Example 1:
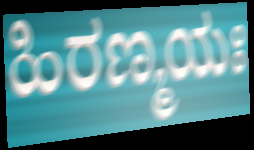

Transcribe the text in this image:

ಹಿರಣ್ಮಯಃ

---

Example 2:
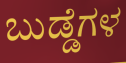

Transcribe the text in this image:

ಬುಡ್ಡೆಗಳ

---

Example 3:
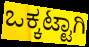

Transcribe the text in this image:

ಒಕ್ಕಟ್ಟಾಗಿ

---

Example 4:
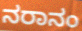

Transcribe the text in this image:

ನರಾನಂ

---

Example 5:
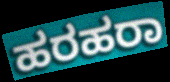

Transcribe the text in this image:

ಹರಹರಾ